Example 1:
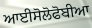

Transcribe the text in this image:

ਆਈਸੋਲੋਫੋਬੀਆ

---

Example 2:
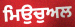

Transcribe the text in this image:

ਮਿਉਚੁਅਲ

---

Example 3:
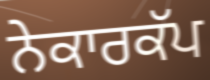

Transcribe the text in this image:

ਨੇਕਾਰਕੱਪ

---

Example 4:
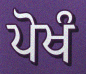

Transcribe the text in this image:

ਪੋਖੰ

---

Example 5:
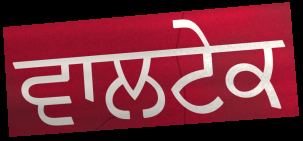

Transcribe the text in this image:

ਵਾਲਟੇਕ